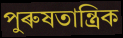
পুৰুষতান্ত্ৰিক